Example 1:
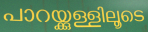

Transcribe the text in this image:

പാറയ്ക്കുള്ളിലൂടെ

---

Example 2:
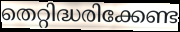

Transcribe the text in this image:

തെറ്റിദ്ധരിക്കേണ്ട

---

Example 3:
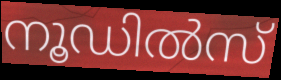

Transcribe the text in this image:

നൂഡിൽസ്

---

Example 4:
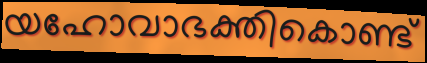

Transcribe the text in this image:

യഹോവാഭക്തികൊണ്ട്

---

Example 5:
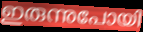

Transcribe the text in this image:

ഇരുന്നുപോയി